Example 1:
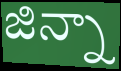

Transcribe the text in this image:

జిన్నా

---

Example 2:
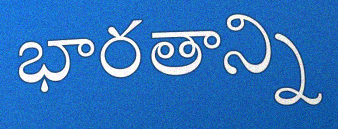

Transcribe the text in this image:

భారతాన్ని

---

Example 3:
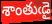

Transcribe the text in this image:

శాంతుఁడై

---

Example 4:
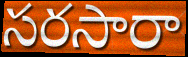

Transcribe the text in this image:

సరసారా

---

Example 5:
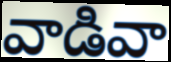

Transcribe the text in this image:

వాడివా